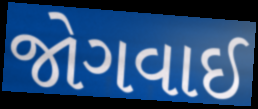
જોગવાઈ